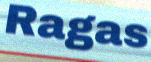
Ragas